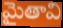
మైతావి